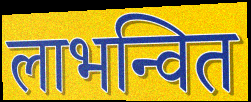
लाभन्वित